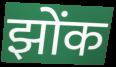
झोंक